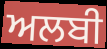
ਅਲਬੀ